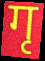
गृ